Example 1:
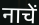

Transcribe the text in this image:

नाचें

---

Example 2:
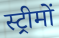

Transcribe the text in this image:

स्ट्रीमों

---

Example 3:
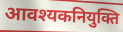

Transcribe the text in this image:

आवश्यकनियुक्ति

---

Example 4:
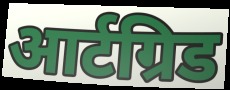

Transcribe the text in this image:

आर्टग्रिड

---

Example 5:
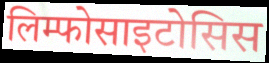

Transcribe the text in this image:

लिम्फोसाइटोसिस